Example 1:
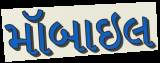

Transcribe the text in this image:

મૉબાઇલ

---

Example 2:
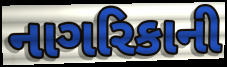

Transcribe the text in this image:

નાગરિકાની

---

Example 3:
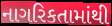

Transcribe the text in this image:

નાગરિકતામાંથી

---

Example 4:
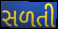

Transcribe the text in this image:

સળતી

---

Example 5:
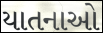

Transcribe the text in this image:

યાતનાઓ